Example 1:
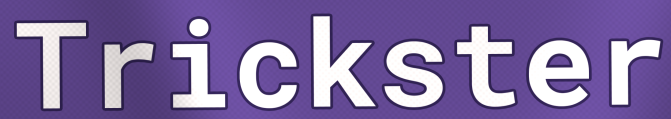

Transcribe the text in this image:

Trickster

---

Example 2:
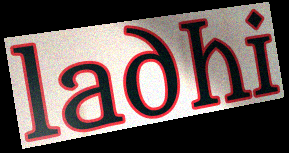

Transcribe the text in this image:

ladhi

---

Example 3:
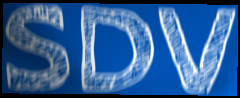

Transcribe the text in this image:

SDV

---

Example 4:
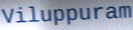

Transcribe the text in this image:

Viluppuram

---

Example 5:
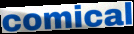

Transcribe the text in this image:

comical